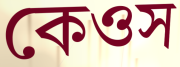
কেওস